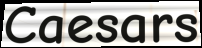
Caesars